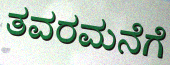
ತವರಮನೆಗೆ